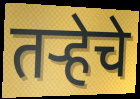
तर्‍हेचे